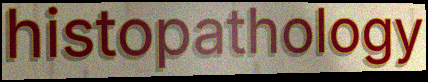
histopathology